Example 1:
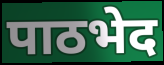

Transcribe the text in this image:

पाठभेद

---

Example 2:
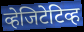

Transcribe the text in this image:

व्हेजिटेटिव्ह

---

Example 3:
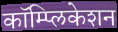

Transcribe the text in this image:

कॉम्प्लिकेशन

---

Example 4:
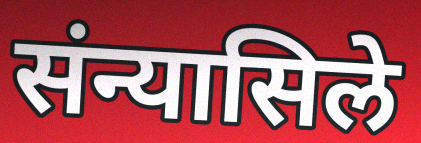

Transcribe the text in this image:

संन्यासिले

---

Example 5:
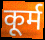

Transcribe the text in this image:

कूर्म